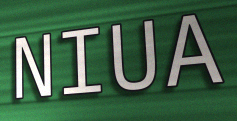
NIUA